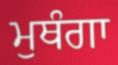
ਮੁਥੰਗਾ